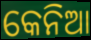
କେନିଆ